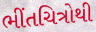
ભીંતચિત્રોથી